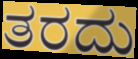
ತರದು